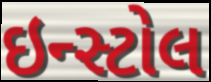
ઇન્સ્ટોલ